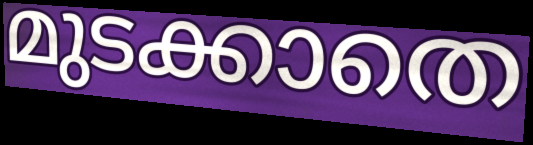
മുടക്കാതെ